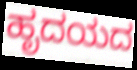
ಹೃದಯದ